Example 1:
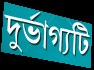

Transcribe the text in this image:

দুর্ভাগ্যটি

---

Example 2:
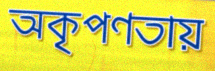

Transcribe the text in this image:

অকৃপণতায়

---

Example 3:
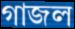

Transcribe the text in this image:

গাজল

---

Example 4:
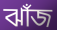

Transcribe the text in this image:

ঝাঁজ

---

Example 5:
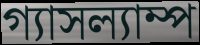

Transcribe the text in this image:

গ্যাসল্যাম্প